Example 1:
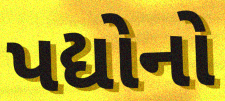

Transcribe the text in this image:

પદ્યોનો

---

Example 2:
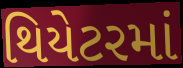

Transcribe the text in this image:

થિયેટરમાં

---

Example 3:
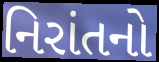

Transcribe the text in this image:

નિરાંતનો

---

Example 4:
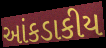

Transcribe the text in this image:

આંકડાકીય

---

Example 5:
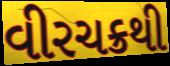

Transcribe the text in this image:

વીરચક્રથી